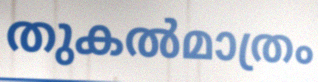
തുകൽമാത്രം